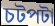
চটপটা